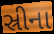
સ્રીના